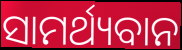
ସାମର୍ଥ୍ୟବାନ